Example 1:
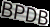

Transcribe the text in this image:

BPDB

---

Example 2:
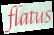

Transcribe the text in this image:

flatus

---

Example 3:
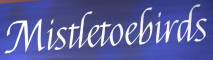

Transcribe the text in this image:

Mistletoebirds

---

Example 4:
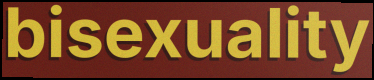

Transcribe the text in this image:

bisexuality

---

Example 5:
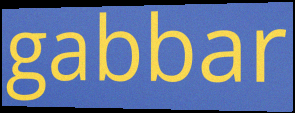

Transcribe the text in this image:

gabbar